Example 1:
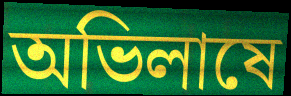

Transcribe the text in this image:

অভিলাষে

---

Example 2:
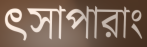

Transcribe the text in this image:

ৎসাপারাং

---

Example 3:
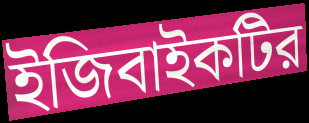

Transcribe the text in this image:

ইজিবাইকটির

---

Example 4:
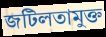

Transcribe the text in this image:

জটিলতামুক্ত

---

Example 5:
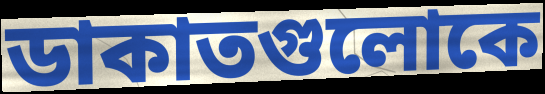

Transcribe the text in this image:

ডাকাতগুলোকে